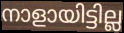
നാളായിട്ടില്ല